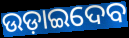
ଉଡ଼ାଇଦେବ